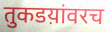
तुकडय़ांवरच